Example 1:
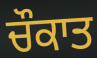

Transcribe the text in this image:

ਚੌਕਾਤ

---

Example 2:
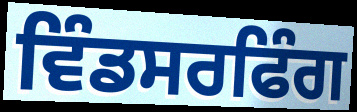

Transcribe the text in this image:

ਵਿੰਡਸਰਫਿੰਗ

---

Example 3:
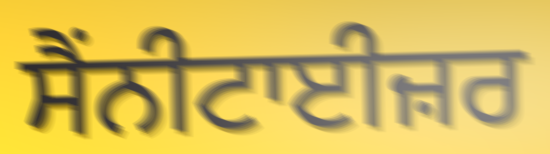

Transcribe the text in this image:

ਸੈਂਨੀਟਾਈਜ਼ਰ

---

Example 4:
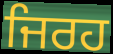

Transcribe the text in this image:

ਜਿਰਹ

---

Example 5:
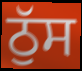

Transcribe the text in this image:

ਠੁੱਸ